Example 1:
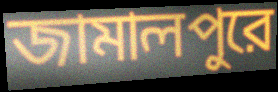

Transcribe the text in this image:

জামালপুরে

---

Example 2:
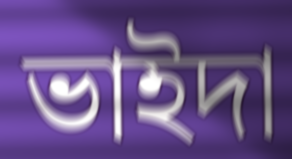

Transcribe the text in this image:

ভাইদা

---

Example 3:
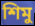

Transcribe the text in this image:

শিমু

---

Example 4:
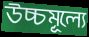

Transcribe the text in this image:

উচ্চমূল্যে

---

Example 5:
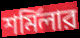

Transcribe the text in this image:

শর্মিলার